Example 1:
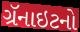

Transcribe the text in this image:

ગ્રૅનાઇટનો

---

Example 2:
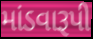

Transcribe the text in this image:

માંડવારૂપી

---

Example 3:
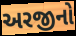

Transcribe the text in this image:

અરજીનો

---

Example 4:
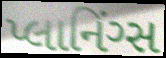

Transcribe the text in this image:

પ્લાનિંગ્સ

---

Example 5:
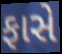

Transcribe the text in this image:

ફાસે